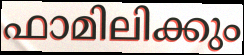
ഫാമിലിക്കും